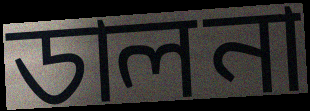
ডালনা